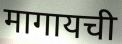
मागायची